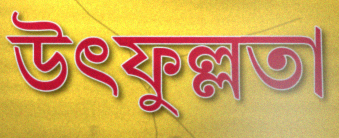
উৎফুল্লতা